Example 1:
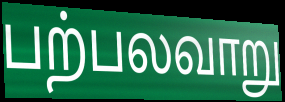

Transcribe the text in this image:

பற்பலவாறு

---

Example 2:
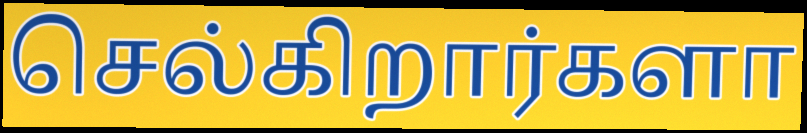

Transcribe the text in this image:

செல்கிறார்களா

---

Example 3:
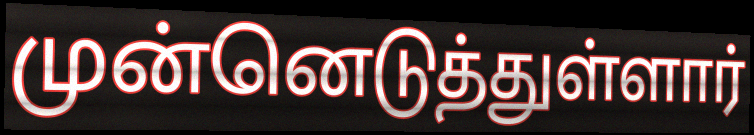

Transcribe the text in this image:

முன்னெடுத்துள்ளார்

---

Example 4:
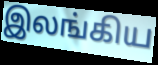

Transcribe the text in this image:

இலங்கிய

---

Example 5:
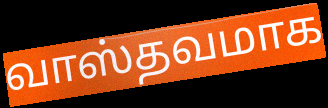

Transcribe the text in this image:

வாஸ்தவமாக